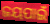
ଜୟପାଇଁ